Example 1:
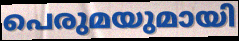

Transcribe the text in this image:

പെരുമയുമായി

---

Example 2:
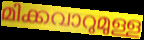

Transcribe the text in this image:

മിക്കവാറുമുള്ള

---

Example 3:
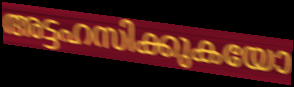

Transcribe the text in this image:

അട്ടഹസിക്കുകയോ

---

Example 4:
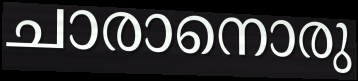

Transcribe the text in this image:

ചാരാനൊരു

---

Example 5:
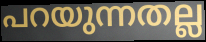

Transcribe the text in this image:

പറയുന്നതല്ല